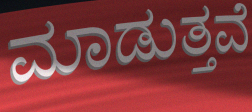
ಮಾಡುತ್ತವೆ